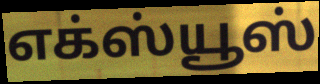
எக்ஸ்யூஸ்